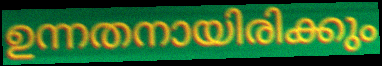
ഉന്നതനായിരിക്കും